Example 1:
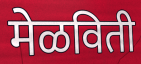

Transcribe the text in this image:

मेळविती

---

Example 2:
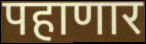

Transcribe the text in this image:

पहाणार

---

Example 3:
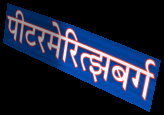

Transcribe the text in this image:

पीटरमेरित्झबर्ग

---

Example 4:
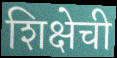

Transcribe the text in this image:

शिक्षेची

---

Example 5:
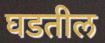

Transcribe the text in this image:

घडतील